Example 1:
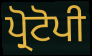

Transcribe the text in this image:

ਪ੍ਰੋਟੋਪੀ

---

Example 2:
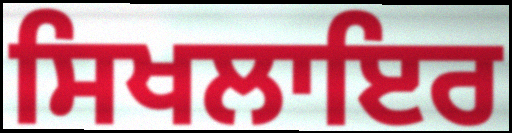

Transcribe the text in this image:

ਸਿਖਲਾਇਰ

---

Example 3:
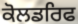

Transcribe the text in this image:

ਕੋਲਡਰਿਫ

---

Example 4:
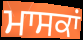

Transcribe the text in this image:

ਮਾਸਕਾਂ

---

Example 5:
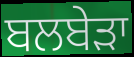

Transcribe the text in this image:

ਬਲਬੇਡ਼ਾ